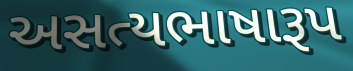
અસત્યભાષારૂપ